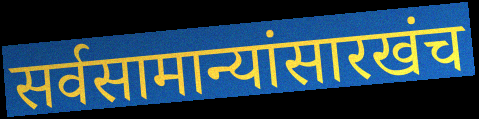
सर्वसामान्यांसारखंच